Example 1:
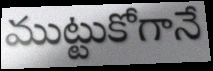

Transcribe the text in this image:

ముట్టుకోగానే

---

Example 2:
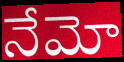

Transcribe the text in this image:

నేమో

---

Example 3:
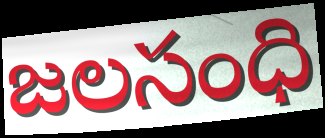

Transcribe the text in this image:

జలసంధి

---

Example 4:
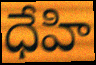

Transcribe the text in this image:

ధేహి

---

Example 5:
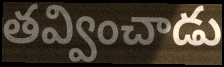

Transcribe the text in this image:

తవ్వించాడు